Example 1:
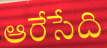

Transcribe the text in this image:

ఆరేసేది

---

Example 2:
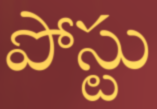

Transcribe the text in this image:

పోస్టు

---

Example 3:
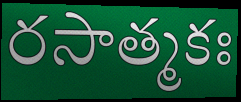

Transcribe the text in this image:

రసాత్మకః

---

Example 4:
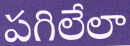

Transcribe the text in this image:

పగిలేలా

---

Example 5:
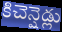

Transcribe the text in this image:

కిచెన్షెడ్లు